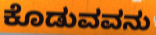
ಕೊಡುವವನು